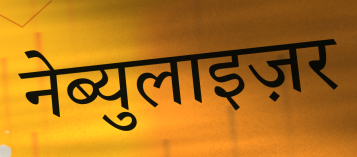
नेब्युलाइज़र